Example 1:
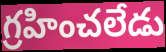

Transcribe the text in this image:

గ్రహించలేడు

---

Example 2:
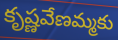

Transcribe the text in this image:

కృష్ణవేణమ్మకు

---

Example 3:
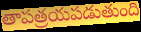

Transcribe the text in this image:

తాపత్రయపడుతుంది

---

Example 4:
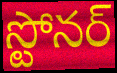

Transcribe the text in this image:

స్టోనర్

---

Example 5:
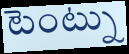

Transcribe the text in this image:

టెంట్ను